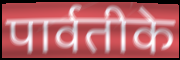
पार्वतीके